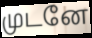
முடனே